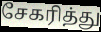
சேகரித்து